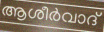
ആശീർവാദ്